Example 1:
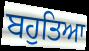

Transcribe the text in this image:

ਬਹੁਤਿਆ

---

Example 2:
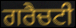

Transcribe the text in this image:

ਗਰੈਚਟੀ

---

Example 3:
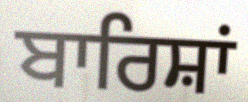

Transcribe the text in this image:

ਬਾਰਿਸ਼ਾਂ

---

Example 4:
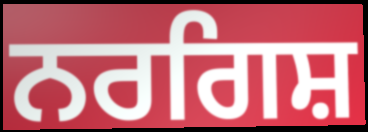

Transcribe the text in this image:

ਨਰਗਿਸ਼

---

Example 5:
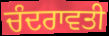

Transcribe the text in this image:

ਚੰਦਰਾਵਤੀ